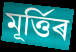
মূৰ্ত্তিৰ